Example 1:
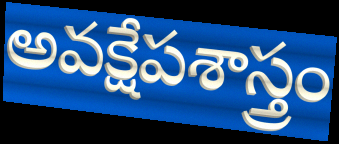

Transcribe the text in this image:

అవక్షేపశాస్త్రం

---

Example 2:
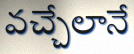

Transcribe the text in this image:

వచ్చేలానే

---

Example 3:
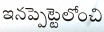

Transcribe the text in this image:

ఇనప్పెట్టెలోంచి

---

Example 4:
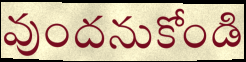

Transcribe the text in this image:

వుందనుకోండి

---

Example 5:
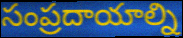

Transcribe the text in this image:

సంప్రదాయాల్ని